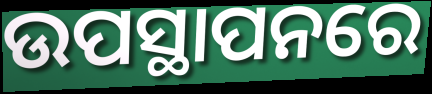
ଉପସ୍ଥାପନରେ